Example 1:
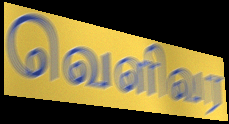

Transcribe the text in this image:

வெளிவர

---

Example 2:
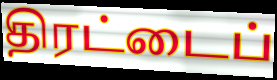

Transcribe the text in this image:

திரட்டைப்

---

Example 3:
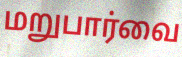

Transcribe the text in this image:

மறுபார்வை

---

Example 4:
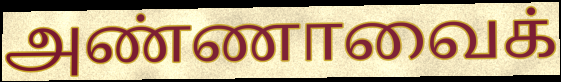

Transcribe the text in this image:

அண்ணாவைக்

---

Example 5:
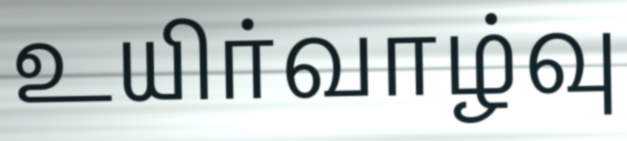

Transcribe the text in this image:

உயிர்வாழ்வு